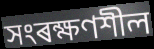
সংৰক্ষণশীল